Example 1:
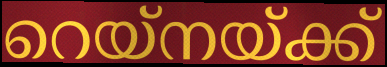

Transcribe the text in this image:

റെയ്നയ്ക്ക്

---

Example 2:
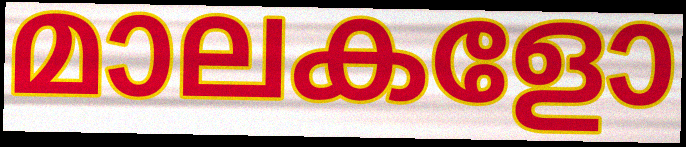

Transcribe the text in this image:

മാലകളോ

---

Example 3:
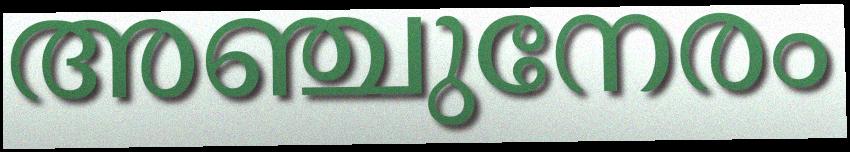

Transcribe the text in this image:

അഞ്ചുനേരം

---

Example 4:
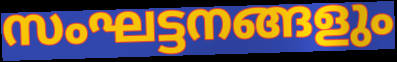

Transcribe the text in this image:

സംഘട്ടനങ്ങളും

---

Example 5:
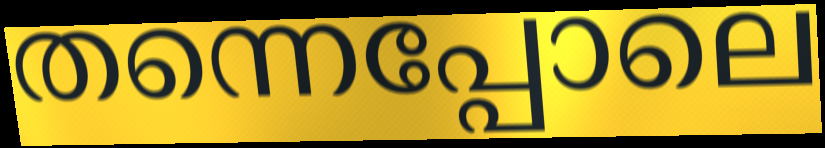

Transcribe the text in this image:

തന്നെപ്പോലെ